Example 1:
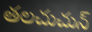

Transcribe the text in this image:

తలచుచున్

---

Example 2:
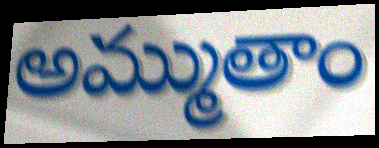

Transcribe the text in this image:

అమ్ముతాం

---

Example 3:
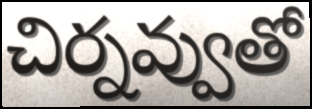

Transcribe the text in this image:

చిర్నవ్వుతో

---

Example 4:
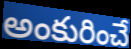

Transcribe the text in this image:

అంకురించే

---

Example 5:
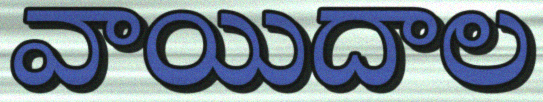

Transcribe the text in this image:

వాయిదాల